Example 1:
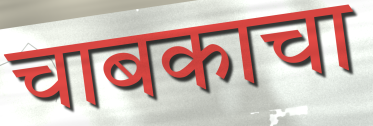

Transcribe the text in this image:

चाबकाचा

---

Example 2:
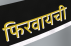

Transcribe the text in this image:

फिरवायची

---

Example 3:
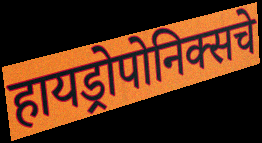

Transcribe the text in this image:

हायड्रोपोनिक्सचे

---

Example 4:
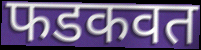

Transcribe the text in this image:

फडकवत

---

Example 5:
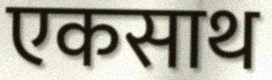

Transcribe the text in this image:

एकसाथ